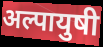
अल्पायुषी